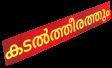
കടൽത്തീരത്തും